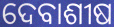
ଦେବାଶୀଷ